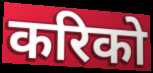
करिको